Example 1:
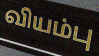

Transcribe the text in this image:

வியம்பு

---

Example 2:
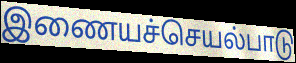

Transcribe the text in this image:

இணையச்செயல்பாடு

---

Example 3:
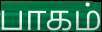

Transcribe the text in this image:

பாகம்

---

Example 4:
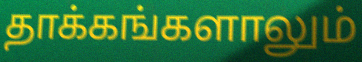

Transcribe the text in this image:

தாக்கங்களாலும்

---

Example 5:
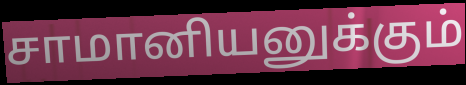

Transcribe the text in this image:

சாமானியனுக்கும்